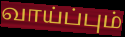
வாய்ப்பும்